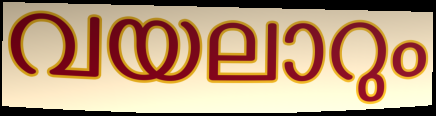
വയലാറും